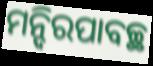
ମନ୍ଦିରପାବଚ୍ଛ